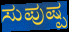
ಸುಪುಷ್ಪ